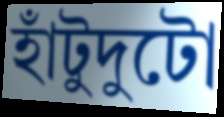
হাঁটুদুটো